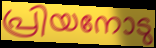
പ്രിയനോടു